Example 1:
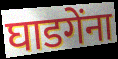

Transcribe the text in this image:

घाडगेंना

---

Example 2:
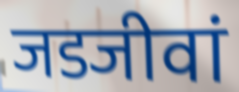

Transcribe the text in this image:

जडजीवां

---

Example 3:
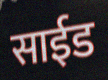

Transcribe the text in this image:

साईड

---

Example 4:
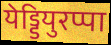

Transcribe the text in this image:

येड्डियुरप्पा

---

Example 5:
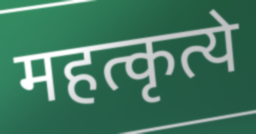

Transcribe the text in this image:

महत्कृत्ये